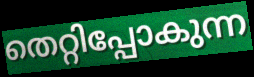
തെറ്റിപ്പോകുന്ന